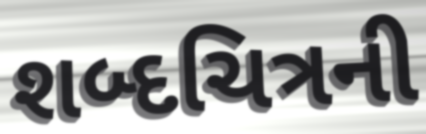
શબ્દચિત્રની